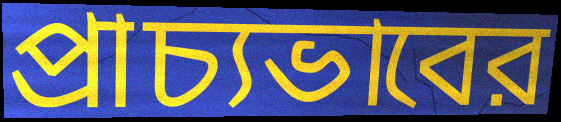
প্রাচ্যভাবের